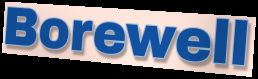
Borewell